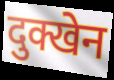
दुक्खेन